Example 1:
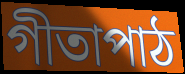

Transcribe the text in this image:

গীতাপাঠ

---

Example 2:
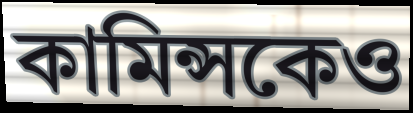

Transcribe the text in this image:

কামিন্সকেও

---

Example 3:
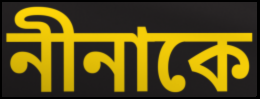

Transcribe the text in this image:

নীনাকে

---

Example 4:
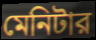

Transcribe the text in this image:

মেনিটার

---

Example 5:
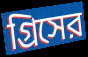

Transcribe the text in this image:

গ্রিসের